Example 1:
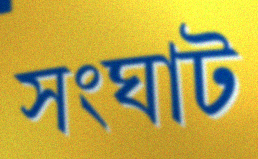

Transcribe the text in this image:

সংঘাট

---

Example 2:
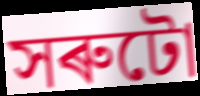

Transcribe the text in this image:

সৰুটো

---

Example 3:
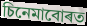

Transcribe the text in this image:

চিনেমাবোৰত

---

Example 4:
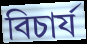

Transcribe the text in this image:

বিচাৰ্য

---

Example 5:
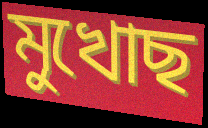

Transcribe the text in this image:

মুখোছ